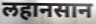
लहानसान